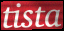
tista